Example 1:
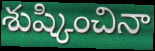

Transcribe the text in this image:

శుష్కించినా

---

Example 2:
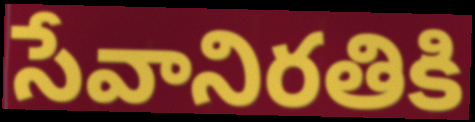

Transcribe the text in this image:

సేవానిరతికి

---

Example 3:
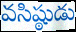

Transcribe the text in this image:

వసిష్ఠుడు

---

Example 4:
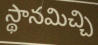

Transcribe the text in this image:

స్థానమిచ్చి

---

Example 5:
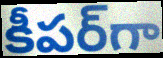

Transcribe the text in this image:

కీపర్‌గా